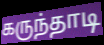
கருந்தாடி